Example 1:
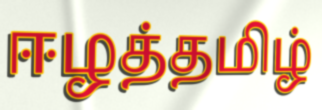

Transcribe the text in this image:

ஈழத்தமிழ்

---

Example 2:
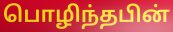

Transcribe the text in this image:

பொழிந்தபின்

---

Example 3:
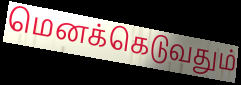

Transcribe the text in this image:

மெனக்கெடுவதும்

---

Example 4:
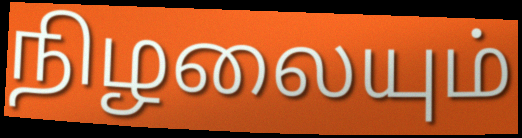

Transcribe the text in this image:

நிழலையும்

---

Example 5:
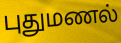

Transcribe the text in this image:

புதுமணல்